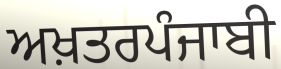
ਅਖ਼ਤਰਪੰਜਾਬੀ